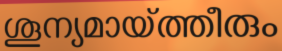
ശൂന്യമായ്ത്തീരും